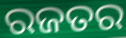
ରଜତର